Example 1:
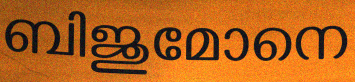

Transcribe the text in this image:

ബിജുമോനെ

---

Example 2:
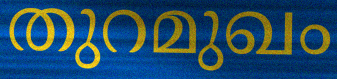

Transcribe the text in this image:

തുറമുഖം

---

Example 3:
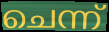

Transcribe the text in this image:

ചെന്ന്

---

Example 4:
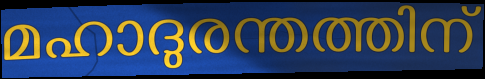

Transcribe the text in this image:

മഹാദുരന്തത്തിന്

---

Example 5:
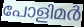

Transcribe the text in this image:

പോളിമർ